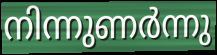
നിന്നുണർന്നു